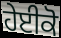
ਹੇਈਕੋ